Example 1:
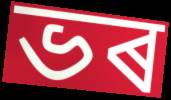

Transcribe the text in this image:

ভৰ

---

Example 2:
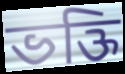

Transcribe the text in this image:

ভক্তি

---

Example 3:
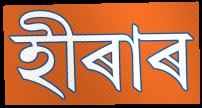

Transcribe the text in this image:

হীৰাৰ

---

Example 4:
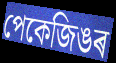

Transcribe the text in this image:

পেকেজিঙৰ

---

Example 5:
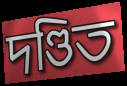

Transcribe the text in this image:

দণ্ডিত